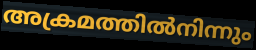
അക്രമത്തിൽനിന്നും